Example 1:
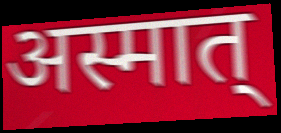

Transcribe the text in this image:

अस्मात्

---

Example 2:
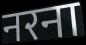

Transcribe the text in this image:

नरना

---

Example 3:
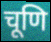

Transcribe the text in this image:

चूणि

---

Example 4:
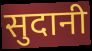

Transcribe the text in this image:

सुदानी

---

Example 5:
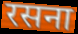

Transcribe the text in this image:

रसना